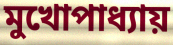
মুখোপাধ্যায়